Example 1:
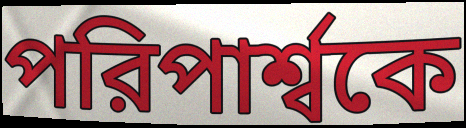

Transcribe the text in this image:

পরিপার্শ্বকে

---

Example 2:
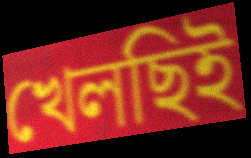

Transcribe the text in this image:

খেলছিই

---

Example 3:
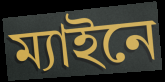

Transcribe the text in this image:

ম্যাইনে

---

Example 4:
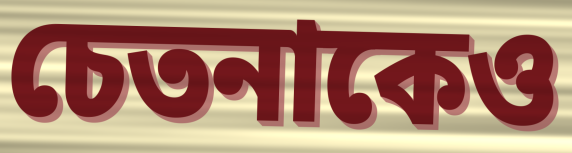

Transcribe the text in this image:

চেতনাকেও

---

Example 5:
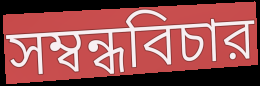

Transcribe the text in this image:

সম্বন্ধবিচার